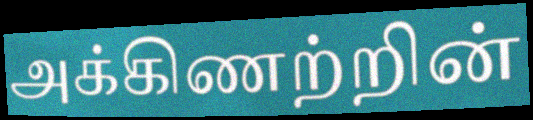
அக்கிணற்றின்